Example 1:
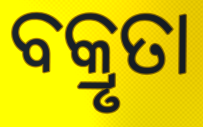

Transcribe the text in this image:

ବକ୍ରୃତା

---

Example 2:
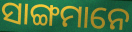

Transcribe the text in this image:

ସାଙ୍ଗମାନେ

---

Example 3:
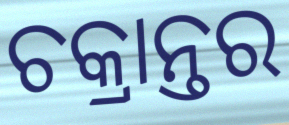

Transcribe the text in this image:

ଚକ୍ରାନ୍ତର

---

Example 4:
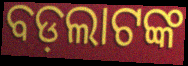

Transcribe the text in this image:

ବଡ଼ଲାଟଙ୍କ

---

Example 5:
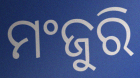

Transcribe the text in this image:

ମଂଜୁରି